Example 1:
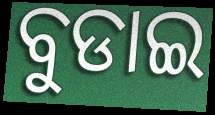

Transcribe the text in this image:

ବୁଡାଇ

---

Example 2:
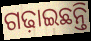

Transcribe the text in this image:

ଗଢ଼ାଇଛନ୍ତି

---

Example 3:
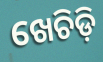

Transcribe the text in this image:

ଖେଚିଡ଼ି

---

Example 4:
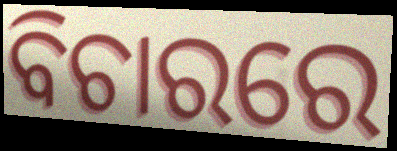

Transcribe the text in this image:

ବିଚାରରେ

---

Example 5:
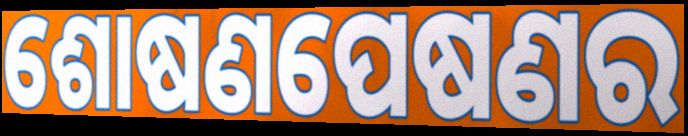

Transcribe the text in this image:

ଶୋଷଣପେଷଣର